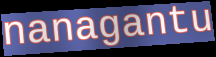
nanagantu